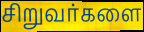
சிறுவர்களை